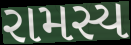
રામસ્ય